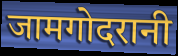
जामगोदरानी